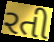
રતી